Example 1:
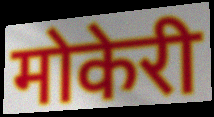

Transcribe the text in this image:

मोकेरी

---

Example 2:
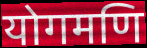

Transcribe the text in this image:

योगमणि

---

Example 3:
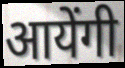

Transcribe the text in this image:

आयेंगी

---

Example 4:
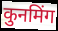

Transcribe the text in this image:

कुनमिंग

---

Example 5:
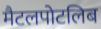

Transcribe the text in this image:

मैटलपोटलिब